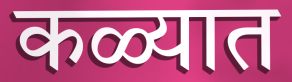
कळ्यात